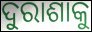
ଦୁରାଶାକୁ